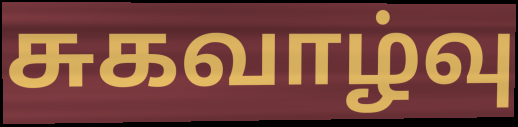
சுகவாழ்வு